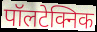
पॉलटेक्निक